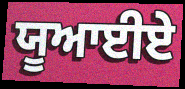
ਯੂਆਈਏ